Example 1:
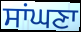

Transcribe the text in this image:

ਸਾਂਘਣਾ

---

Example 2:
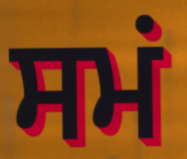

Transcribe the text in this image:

ਸਮਂ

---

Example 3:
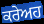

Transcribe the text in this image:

ਕਰੇਅਹ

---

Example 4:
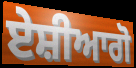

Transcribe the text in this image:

ਏਸ਼ੀਆਗੋ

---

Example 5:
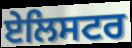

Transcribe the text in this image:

ਏਲਿਸਟਰ